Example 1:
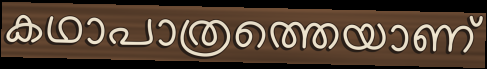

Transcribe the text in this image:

കഥാപാത്രത്തെയാണ്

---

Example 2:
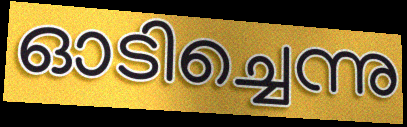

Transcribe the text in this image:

ഓടിച്ചെന്നു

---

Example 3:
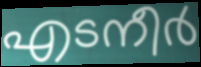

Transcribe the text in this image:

എടനീർ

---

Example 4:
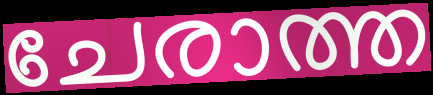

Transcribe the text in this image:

ചേരാത്ത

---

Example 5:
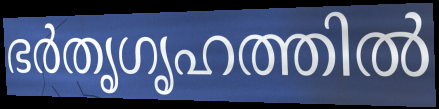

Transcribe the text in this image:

ഭർതൃഗൃഹത്തിൽ